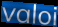
valoi